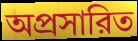
অপ্রসারিত